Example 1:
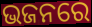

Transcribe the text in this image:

ଭଜନରେ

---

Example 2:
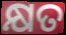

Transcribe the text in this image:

କ୍ଷତ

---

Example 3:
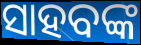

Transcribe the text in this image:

ସାହବଙ୍କ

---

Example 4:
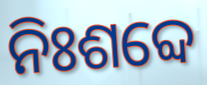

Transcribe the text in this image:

ନିଃଶବ୍ଦେ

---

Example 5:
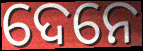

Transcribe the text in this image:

ଦେନେ